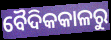
ବୈଦିକକାଳରୁ